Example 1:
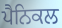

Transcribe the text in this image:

ਪੈਨਿਕਲ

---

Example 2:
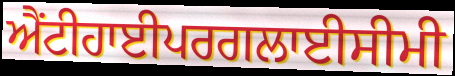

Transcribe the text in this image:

ਐਂਟੀਹਾਈਪਰਗਲਾਈਸੀਮੀ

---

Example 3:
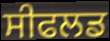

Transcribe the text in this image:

ਸੀਫਲਡ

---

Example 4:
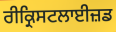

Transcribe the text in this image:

ਰੀਕ੍ਰਿਸਟਲਾਈਜ਼ਡ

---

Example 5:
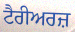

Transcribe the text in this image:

ਟੈਰੀਅਰਜ਼